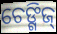
ଚେଙ୍ଗିଜ୍